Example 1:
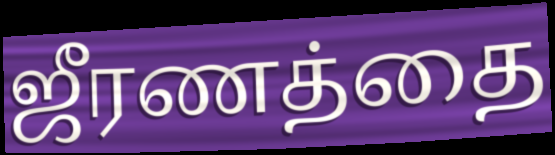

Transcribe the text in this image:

ஜீரணத்தை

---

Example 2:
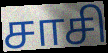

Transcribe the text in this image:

சாசி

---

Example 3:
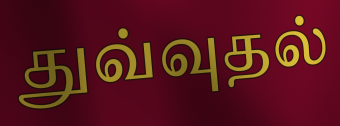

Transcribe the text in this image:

துவ்வுதல்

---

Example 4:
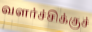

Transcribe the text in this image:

வளர்ச்சிக்குச்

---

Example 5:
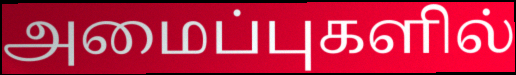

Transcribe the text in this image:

அமைப்புகளில்